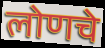
लोणचे